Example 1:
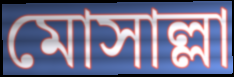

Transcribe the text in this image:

মোসাল্লা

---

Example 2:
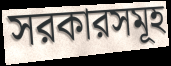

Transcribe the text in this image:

সরকারসমূহ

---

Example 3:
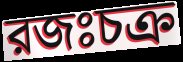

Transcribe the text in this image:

রজঃচক্র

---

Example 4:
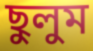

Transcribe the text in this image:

ছুলুম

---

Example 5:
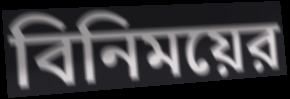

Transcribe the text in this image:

বিনিময়ের